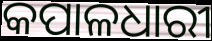
କପାଳଧାରୀ